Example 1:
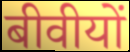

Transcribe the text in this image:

बीवीयों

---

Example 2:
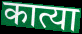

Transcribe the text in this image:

कात्या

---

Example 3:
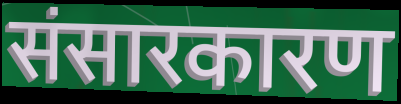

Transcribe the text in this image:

संसारकारण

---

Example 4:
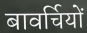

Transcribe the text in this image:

बावर्चियों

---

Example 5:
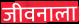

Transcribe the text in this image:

जीवनाला